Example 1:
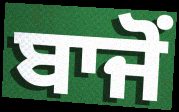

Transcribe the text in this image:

ਬਾਜੋਂ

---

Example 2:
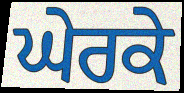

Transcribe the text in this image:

ਘੇਰਕੇ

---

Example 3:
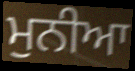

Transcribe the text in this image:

ਮੁਨੀਆ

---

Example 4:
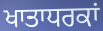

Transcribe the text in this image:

ਖਾਤਾਧਰਕਾਂ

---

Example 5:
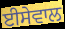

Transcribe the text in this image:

ਈਸੇਵਾਲ